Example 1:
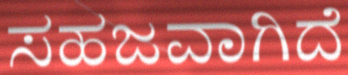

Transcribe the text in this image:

ಸಹಜವಾಗಿದೆ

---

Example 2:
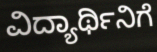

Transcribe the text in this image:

ವಿದ್ಯಾರ್ಥಿನಿಗೆ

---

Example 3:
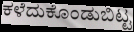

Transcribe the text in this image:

ಕಳೆದುಕೊಂಡುಬಿಟ್ಟ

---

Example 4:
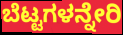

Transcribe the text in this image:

ಬೆಟ್ಟಗಳನ್ನೇರಿ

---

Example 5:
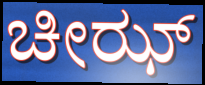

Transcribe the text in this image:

ಚೀಝ್